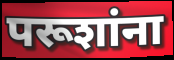
परूशांना